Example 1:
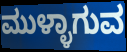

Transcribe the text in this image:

ಮುಳ್ಳಾಗುವ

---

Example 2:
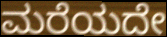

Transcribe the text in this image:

ಮರೆಯದೇ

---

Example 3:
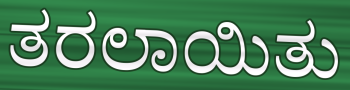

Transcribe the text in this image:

ತರಲಾಯಿತು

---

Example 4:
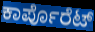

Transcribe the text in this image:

ಕಾರ್ಪೊರೆಟ್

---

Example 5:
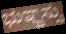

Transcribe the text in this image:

ಭುಞ್ಜಸ್ಸು